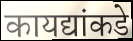
कायद्यांकडे